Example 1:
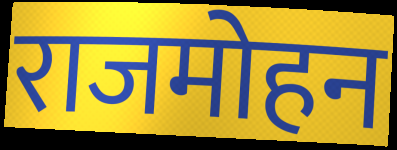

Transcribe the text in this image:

राजमोहन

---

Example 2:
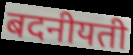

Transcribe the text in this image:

बदनीयती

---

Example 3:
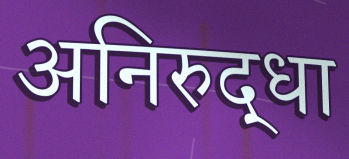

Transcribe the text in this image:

अनिरुद्धा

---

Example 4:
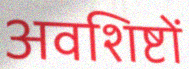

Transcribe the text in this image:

अवशिष्टों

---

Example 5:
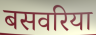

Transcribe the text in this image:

बसवरिया